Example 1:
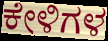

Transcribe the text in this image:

ಕೇಳಿಗಳ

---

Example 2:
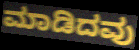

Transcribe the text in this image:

ಮಾಡಿದವು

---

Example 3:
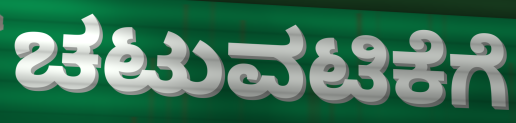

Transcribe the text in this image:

ಚಟುವಟಿಕೆಗೆ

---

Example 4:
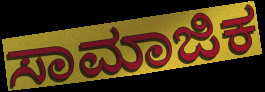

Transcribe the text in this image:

ಸಾಮಾಜಿಕ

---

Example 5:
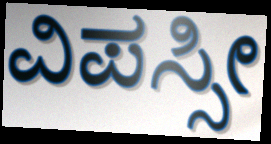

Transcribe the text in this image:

ವಿಪಸ್ಸೀ